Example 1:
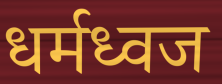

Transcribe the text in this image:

धर्मध्वज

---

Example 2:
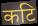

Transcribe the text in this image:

कटि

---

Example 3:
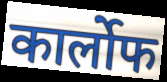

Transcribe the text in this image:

कार्लोफ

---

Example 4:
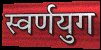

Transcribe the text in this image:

स्वर्णयुग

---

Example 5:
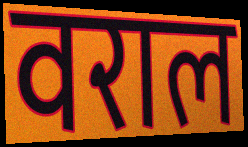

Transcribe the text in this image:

वराल